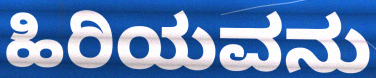
ಹಿರಿಯವನು